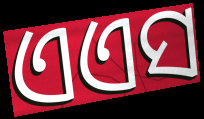
ଏଏସ